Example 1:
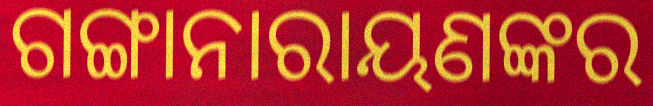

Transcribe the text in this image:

ଗଙ୍ଗାନାରାୟଣଙ୍କର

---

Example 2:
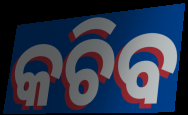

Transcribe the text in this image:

କଚିବ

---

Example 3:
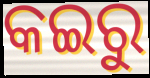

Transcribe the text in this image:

କଇରୁ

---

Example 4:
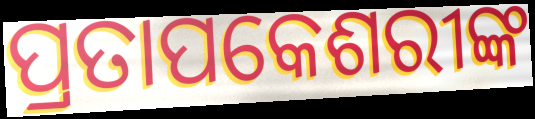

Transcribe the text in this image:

ପ୍ରତାପକେଶରୀଙ୍କ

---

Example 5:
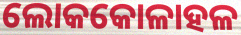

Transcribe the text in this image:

ଲୋକକୋଳାହଳ